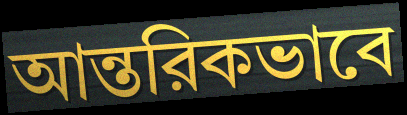
আন্তরিকভাবে